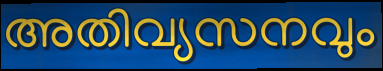
അതിവ്യസനവും